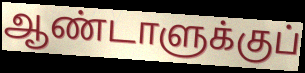
ஆண்டாளுக்குப்